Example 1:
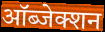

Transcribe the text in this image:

ऑब्जेक्शन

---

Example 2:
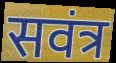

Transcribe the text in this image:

सवंत्र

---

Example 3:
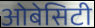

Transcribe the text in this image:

ओबेसिटी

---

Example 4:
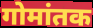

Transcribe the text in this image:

गोमांतक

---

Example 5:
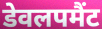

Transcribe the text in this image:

डेवलपमैंट